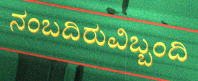
ನಂಬದಿರುವಿಬ್ಬಂದಿ